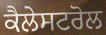
ਕੈਲੇਸਟਰੋਲ